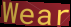
Wear